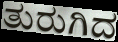
ತುರುಗಿದ